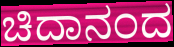
ಚಿದಾನಂದ